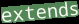
extends